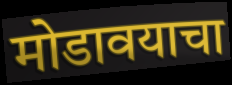
मोडावयाचा